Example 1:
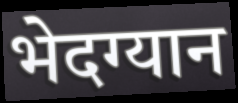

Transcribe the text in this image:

भेदग्यान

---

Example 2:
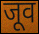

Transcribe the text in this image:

जूव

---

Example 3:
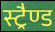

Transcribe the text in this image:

स्ट्रैण्ड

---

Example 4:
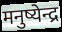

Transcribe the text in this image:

मनुष्येन्द्र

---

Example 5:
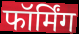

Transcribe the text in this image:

फॉर्मिंग